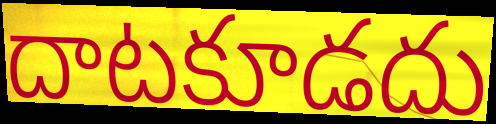
దాటకూడదు